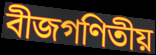
বীজগণিতীয়